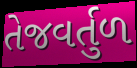
તેજવર્તુળ